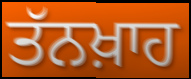
ਤੱਨਖ਼ਾਹ